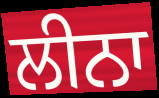
ਲੀਨਾ